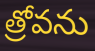
త్రోవను